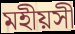
মহীয়সী